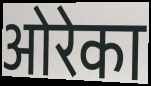
ओरेका